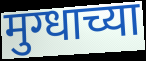
मुग्धाच्या